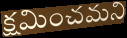
క్షమించమని